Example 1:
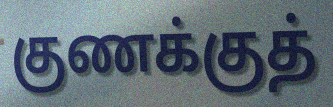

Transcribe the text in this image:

குணக்குத்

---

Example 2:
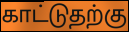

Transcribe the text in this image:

காட்டுதற்கு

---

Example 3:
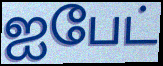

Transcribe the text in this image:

ஐபேட்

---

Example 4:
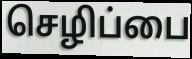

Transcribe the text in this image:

செழிப்பை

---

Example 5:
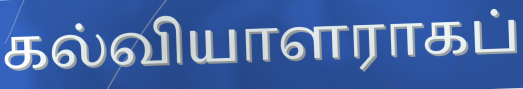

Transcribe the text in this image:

கல்வியாளராகப்